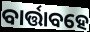
ବାର୍ତ୍ତାବହେ